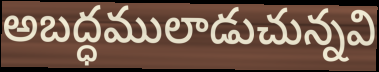
అబద్ధములాడుచున్నవి